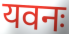
यवनः